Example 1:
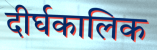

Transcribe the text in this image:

दीर्घकालिक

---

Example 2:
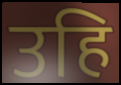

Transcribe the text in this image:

उहि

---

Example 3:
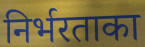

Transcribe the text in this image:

निर्भरताका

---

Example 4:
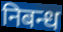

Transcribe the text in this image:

निबन्ध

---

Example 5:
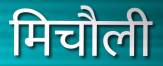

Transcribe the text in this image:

मिचौली